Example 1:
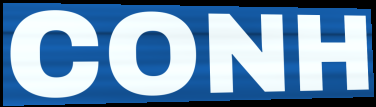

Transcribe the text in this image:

CONH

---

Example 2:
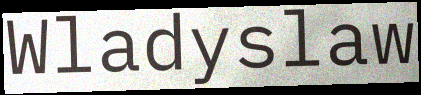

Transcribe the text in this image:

Wladyslaw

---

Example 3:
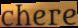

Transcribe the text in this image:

chere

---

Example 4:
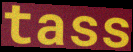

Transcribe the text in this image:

tass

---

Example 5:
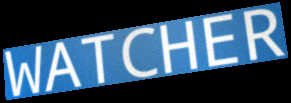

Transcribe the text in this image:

WATCHER